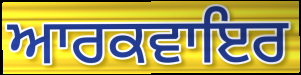
ਆਰਕਵਾਇਰ